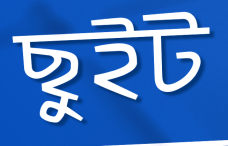
ছুইট